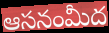
ఆసనంమీద